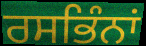
ਰਸਭਿੰਨਾਂ